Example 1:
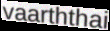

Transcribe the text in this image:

vaarththai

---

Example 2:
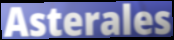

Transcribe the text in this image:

Asterales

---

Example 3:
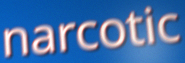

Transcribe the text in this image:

narcotic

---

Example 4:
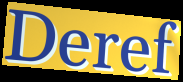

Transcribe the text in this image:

Deref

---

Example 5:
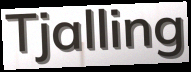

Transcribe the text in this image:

Tjalling